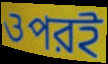
ওপরই